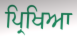
ਪ੍ਰਿਖਿਆ